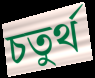
চতুৰ্থ